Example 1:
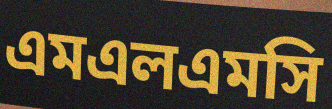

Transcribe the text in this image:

এমএলএমসি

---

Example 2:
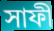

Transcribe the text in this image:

সাফী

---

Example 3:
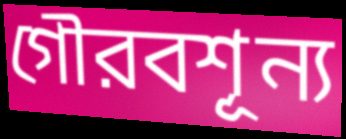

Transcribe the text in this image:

গৌরবশূন্য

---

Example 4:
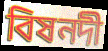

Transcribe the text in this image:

বিষনদী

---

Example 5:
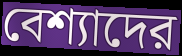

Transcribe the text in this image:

বেশ্যাদের